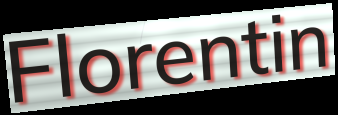
Florentin